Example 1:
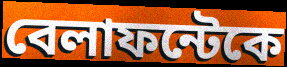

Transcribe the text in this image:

বেলাফন্টেকে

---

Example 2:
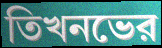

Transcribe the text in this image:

তিখনভের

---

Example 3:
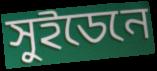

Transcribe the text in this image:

সুইডেনে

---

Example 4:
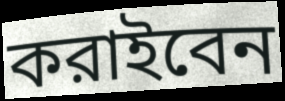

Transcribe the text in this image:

করাইবেন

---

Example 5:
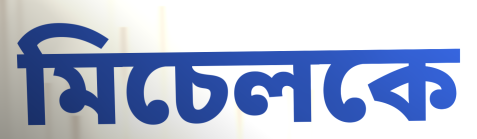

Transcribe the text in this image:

মিচেলকে